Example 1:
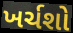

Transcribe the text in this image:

ખર્ચશો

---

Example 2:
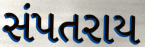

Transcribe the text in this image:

સંપતરાય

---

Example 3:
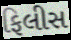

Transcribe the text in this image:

ફિલીસ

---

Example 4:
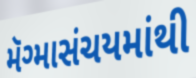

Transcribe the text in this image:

મૅગ્માસંચયમાંથી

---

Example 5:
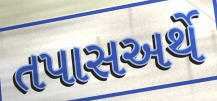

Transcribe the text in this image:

તપાસઅર્થે